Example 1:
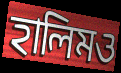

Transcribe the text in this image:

হালিমও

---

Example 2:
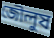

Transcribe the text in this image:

জৌলুষ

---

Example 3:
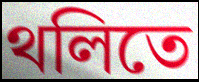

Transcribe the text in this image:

থলিতে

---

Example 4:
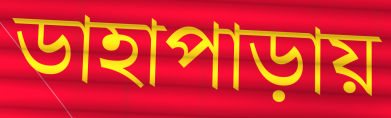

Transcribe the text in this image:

ডাহাপাড়ায়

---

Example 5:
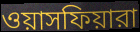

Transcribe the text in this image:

ওয়াসফিয়ারা